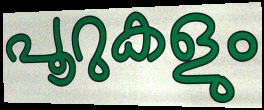
പൂറുകളും